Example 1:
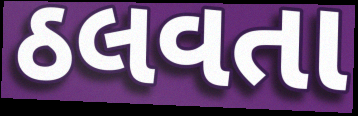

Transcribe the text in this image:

ઠલવતા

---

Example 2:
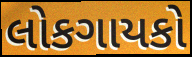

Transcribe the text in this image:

લોકગાયકો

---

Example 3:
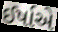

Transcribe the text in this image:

ઈર્ષાએ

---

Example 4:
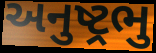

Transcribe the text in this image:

અનુષ્ટ્રભુ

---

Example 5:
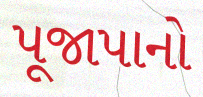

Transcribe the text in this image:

પૂજાપાનો